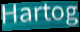
Hartog